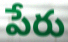
పేరు